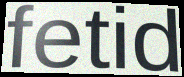
fetid